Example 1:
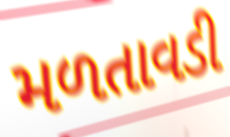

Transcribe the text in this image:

મળતાવડી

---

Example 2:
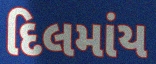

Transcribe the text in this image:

દિલમાંય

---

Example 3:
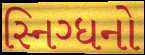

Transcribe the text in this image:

સ્નિગ્ધનો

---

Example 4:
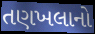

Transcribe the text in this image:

તણખલાનો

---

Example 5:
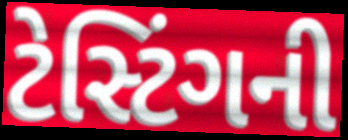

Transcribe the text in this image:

ટેસ્ટિંગની